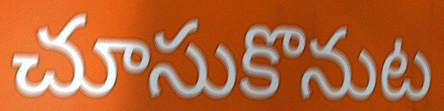
చూసుకొనుట